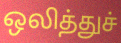
ஒலித்துச்